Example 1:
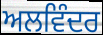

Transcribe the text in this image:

ਅਲਵਿੰਦਰ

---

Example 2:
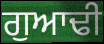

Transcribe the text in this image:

ਗੁਆਢੀ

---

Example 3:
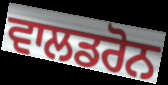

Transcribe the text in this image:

ਵਾਲਡਰੋਨ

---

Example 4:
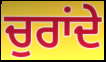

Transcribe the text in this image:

ਚੁਰਾਂਦੇ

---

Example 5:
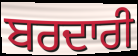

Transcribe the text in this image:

ਬਰਦਾਰੀ